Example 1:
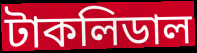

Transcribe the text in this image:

টাকলিডাল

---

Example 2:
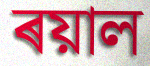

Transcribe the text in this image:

ৰয়াল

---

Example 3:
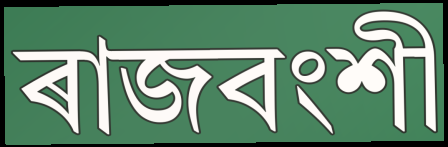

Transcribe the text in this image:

ৰাজবংশী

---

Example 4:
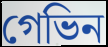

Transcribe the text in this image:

গেভিন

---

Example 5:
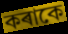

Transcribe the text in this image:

কৰাকে